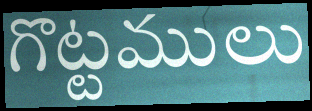
గొట్టములు